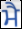
ਮੈ